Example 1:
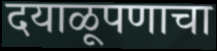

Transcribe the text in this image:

दयाळूपणाचा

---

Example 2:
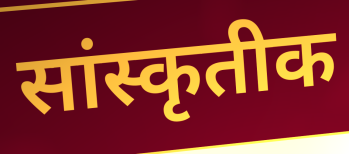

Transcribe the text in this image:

सांस्कृतीक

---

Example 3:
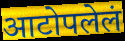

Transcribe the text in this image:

आटोपलेलं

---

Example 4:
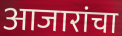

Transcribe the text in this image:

आजारांचा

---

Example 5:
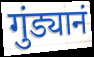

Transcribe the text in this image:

गुंड्यानं